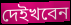
দেইখবেন